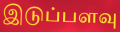
இடுப்பளவு